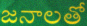
జనాలతో